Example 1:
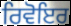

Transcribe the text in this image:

ਰਿਵੋਇਰ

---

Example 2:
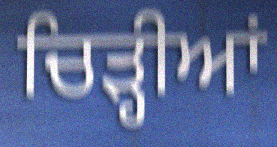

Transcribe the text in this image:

ਚਿੜ੍ਹੀਆਂ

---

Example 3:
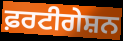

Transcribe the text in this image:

ਫ਼ਰਟੀਗੇਸ਼ਨ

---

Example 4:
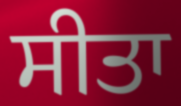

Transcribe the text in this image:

ਸੀਤਾ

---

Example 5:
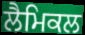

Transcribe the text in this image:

ਲੈਮਿਕਲ